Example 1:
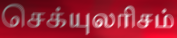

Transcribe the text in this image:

செக்யுலரிசம்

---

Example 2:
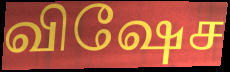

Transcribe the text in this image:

விஷேச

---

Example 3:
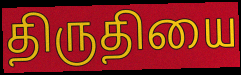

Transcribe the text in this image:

திருதியை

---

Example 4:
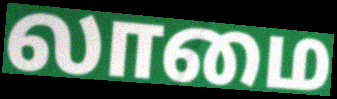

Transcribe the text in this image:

லாமை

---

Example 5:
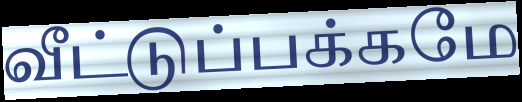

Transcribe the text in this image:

வீட்டுப்பக்கமே